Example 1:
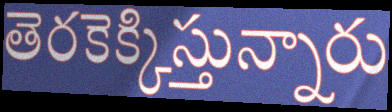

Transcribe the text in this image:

తెరకెక్కిస్తున్నారు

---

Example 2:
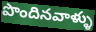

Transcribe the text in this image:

పొందినవాళ్ళు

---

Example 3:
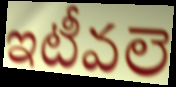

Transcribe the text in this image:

ఇటీవలె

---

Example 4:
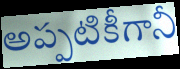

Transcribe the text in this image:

అప్పటికీగానీ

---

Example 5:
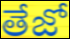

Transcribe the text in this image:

తేజో